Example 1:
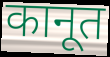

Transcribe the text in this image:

कानूत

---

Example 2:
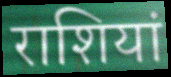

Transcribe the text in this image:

राशियां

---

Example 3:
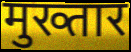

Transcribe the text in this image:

मुख्तार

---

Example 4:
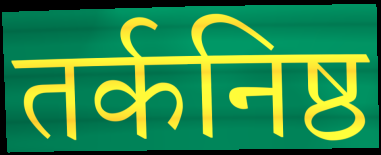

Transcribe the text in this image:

तर्कनिष्ठ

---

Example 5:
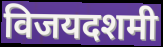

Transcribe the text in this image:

विजयदशमी